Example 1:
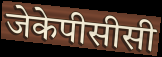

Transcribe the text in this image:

जेकेपीसीसी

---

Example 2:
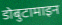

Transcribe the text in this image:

डोबुटामाइन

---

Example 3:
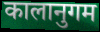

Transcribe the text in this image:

कालानुगम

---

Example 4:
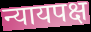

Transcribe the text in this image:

न्यायपक्ष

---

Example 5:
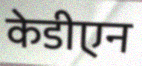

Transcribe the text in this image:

केडीएन